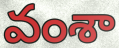
వంశా